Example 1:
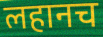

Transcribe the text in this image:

लहानच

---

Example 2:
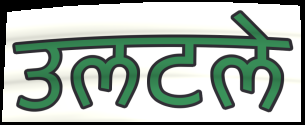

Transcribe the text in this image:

उलटले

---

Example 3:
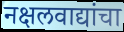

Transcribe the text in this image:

नक्षलवाद्यांचा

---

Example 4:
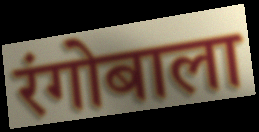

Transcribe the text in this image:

रंगोबाला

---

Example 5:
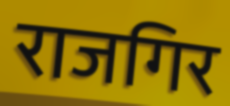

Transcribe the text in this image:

राजगिर